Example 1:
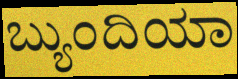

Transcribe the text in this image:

ಬ್ಯುಂದಿಯಾ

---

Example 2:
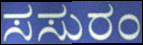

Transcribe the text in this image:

ಸಸುರಂ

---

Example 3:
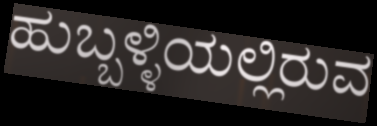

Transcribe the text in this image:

ಹುಬ್ಬಳ್ಳಿಯಲ್ಲಿರುವ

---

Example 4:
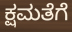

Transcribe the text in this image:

ಕ್ಷಮತೆಗೆ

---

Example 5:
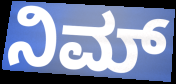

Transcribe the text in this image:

ನಿಮ್